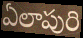
ఏలాపురి